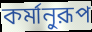
কর্মানুরূপ